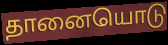
தானையொடு